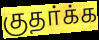
குதர்க்க